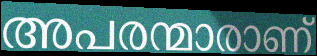
അപരന്മാരാണ്